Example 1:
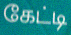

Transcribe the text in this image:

கேட்டி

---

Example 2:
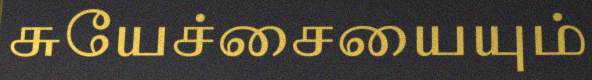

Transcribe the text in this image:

சுயேச்சையையும்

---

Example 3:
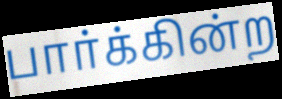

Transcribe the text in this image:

பார்க்கின்ற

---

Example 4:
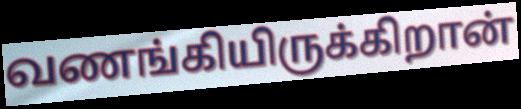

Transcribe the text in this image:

வணங்கியிருக்கிறான்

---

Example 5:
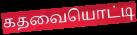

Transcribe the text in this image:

கதவையொட்டி